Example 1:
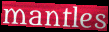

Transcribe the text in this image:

mantles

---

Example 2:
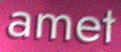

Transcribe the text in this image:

amet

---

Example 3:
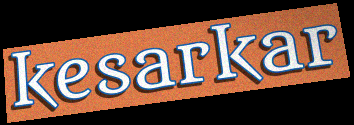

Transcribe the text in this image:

kesarkar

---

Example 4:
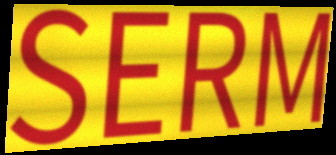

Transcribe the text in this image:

SERM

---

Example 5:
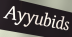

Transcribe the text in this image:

Ayyubids